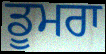
ਡੂਮਰਾ